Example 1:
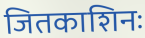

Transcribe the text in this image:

जितकाशिनः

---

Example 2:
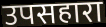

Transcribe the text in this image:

उपसहारा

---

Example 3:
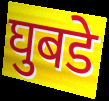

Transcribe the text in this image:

घुबडे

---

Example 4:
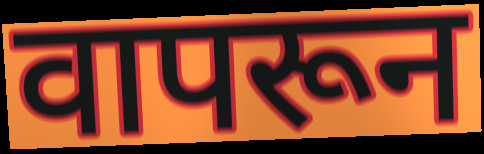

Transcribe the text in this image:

वापरून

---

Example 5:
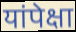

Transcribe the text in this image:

यांपेक्षा